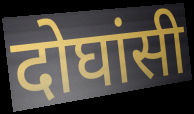
दोघांसी